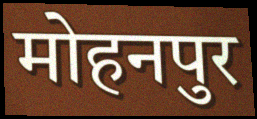
मोहनपुर